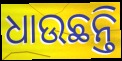
ଧାଉଛନ୍ତି